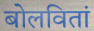
बोलवितां